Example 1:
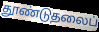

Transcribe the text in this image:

தூண்டுதலைப்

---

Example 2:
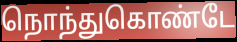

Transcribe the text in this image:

நொந்துகொண்டே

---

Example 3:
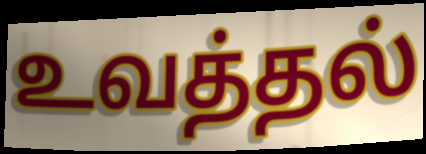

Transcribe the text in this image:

உவத்தல்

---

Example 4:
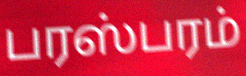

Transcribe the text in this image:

பரஸ்பரம்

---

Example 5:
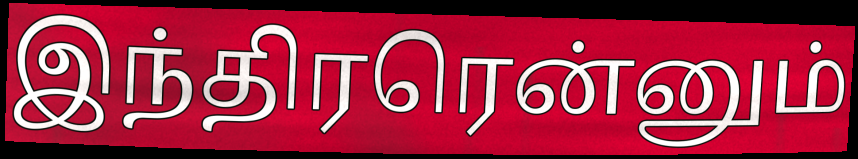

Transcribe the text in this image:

இந்திரரென்னும்